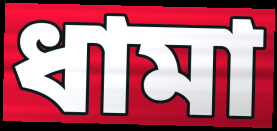
ধামা